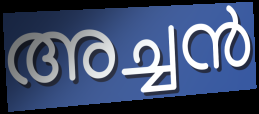
അച്ചൻ